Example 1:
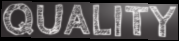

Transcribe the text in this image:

QUALITY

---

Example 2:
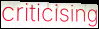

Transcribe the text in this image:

criticising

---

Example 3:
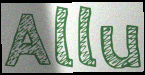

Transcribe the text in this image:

Allu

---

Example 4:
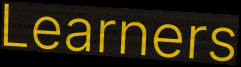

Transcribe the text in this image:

Learners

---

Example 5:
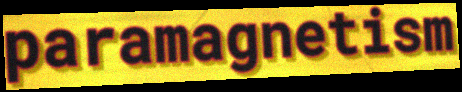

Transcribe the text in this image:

paramagnetism